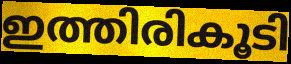
ഇത്തിരികൂടി